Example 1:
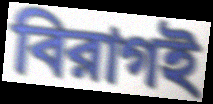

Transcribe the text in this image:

বিরাগই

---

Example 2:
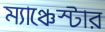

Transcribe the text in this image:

ম্যাঞ্চেস্টার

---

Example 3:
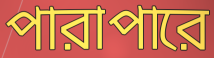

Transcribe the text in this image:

পারাপারে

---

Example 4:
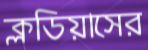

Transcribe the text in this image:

ক্লডিয়াসের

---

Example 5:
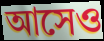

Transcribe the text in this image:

আসেও